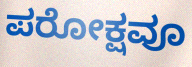
ಪರೋಕ್ಷವೂ